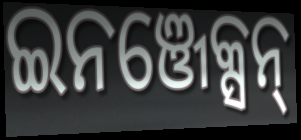
ଇନଞ୍ଜେକ୍ସନ୍